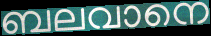
ബലവാനെ